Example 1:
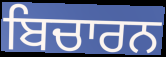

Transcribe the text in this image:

ਬਿਚਾਰਨ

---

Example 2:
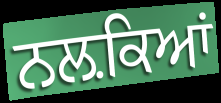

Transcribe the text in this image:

ਨਲ਼ਕਿਆਂ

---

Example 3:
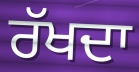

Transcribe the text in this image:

ਰੱਖਦਾ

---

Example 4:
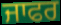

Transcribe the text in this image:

ਜਾਫਰ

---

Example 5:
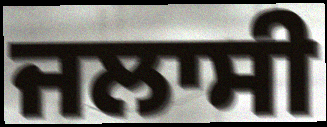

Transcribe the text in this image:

ਜਲਾਸੀ